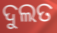
ଦୁଲତ